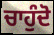
ਚਾਹੁੰਦੋ